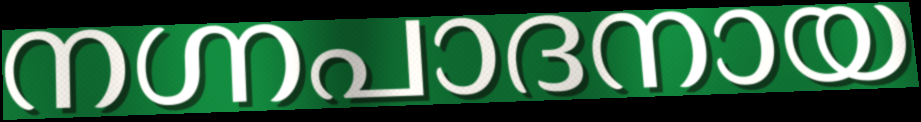
നഗ്നപാദനായ